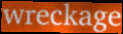
wreckage